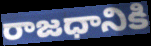
రాజధానికి